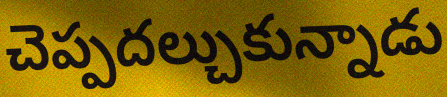
చెప్పదల్చుకున్నాడు